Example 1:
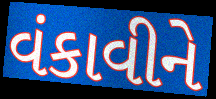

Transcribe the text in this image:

વંકાવીને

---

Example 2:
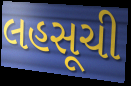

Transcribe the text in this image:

લહસૂચી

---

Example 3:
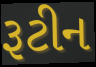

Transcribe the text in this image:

રૂટીન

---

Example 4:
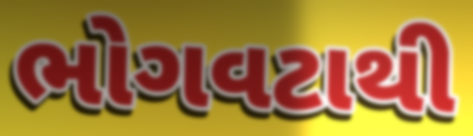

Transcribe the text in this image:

ભોગવટાથી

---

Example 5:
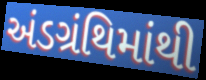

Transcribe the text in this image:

અંડગ્રંથિમાંથી